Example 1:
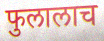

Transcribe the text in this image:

फुलालाच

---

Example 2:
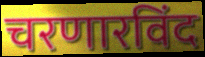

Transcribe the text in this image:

चरणारविंद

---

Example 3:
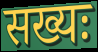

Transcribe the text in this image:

सख्यः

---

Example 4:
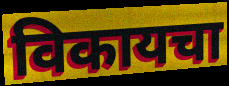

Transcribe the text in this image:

विकायचा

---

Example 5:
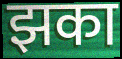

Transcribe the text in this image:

झका